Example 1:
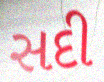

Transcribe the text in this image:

સદી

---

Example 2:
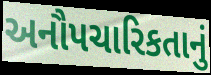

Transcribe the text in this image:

અનૌપચારિકતાનું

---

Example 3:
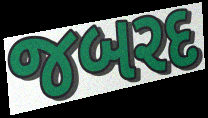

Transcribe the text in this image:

જબરદ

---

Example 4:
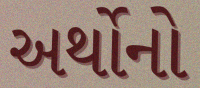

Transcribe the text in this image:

અર્થોનો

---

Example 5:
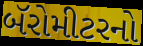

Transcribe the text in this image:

બૅરોમીટરનો